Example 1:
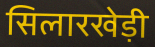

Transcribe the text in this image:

सिलारखेड़ी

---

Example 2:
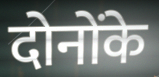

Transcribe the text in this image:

दोनोंके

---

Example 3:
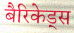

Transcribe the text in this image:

बैरिकेड्स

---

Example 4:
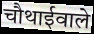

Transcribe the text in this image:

चौथाईवाले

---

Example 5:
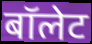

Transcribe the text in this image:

बॉलेट